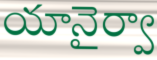
యానైర్వా